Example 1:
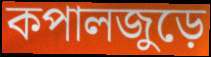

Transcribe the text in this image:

কপালজুড়ে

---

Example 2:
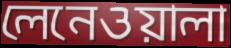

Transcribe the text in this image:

লেনেওয়ালা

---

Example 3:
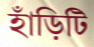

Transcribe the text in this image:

হাঁড়িটি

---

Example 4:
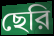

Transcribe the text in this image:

ছেরি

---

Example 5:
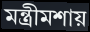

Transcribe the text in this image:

মন্ত্রীমশায়